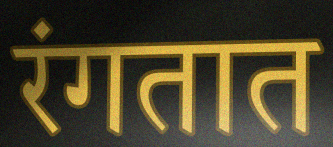
रंगतात